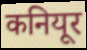
कनियूर